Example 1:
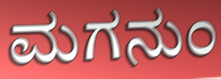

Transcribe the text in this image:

ಮಗನುಂ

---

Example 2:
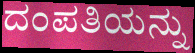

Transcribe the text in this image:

ದಂಪತಿಯನ್ನು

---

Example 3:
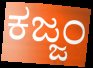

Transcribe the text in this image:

ಕಜ್ಜಂ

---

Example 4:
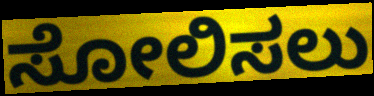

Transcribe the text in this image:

ಸೋಲಿಸಲು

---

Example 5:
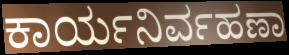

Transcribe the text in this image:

ಕಾರ್ಯನಿರ್ವಹಣಾ